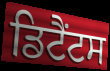
ਡਿਟੈਂਟਸ